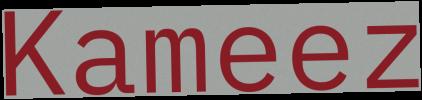
Kameez